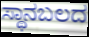
ಸ್ಥಾನಬಲದ